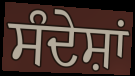
ਸੰਦੇਸ਼ਾਂ